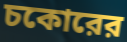
চকোরের